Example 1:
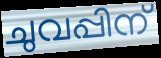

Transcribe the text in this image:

ചുവപ്പിന്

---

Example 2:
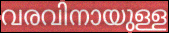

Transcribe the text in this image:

വരവിനായുള്ള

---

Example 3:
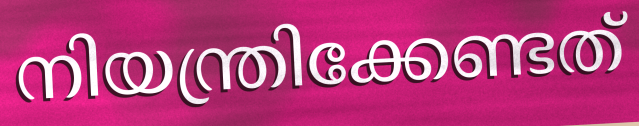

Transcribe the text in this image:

നിയന്ത്രിക്കേണ്ടത്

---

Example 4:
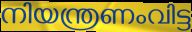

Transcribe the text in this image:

നിയന്ത്രണംവിട്ട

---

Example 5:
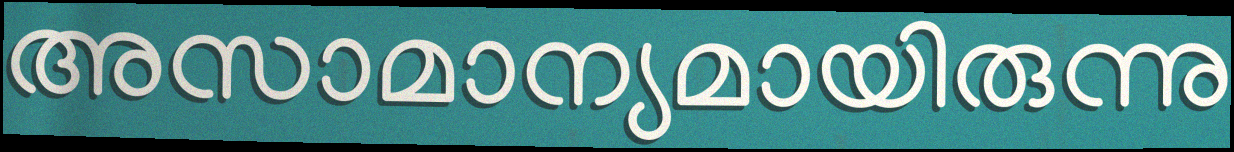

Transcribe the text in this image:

അസാമാന്യമായിരുന്നു